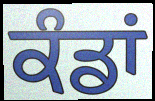
ਕੰਡਾਂ